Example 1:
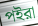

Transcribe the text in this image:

পইরা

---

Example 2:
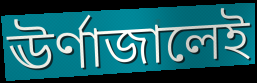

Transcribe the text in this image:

ঊর্ণাজালেই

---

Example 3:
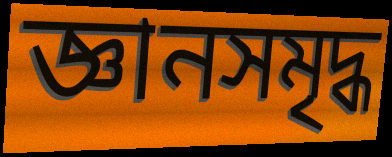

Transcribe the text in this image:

জ্ঞানসমৃদ্ধ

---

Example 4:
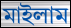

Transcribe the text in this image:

মাইলাম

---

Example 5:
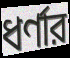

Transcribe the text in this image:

ধর্ণার